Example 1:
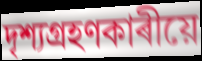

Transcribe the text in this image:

দৃশ্যগ্ৰহণকাৰীয়ে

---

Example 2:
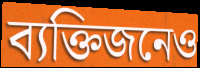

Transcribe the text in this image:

ব্যক্তিজনেও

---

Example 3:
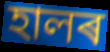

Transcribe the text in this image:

হালৰ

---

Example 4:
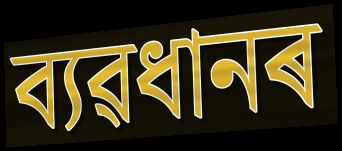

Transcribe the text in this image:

ব্যৱধানৰ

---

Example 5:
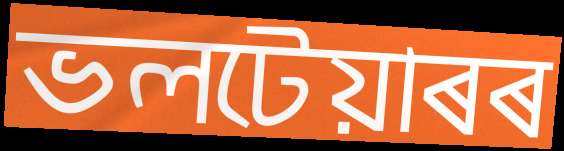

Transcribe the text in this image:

ভলটেয়াৰৰ